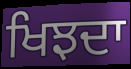
ਖਿਝਦਾ